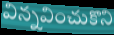
విన్నవించుకొని